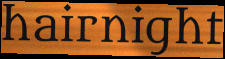
hairnight